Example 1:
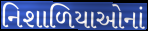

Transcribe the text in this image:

નિશાળિયાઓનાં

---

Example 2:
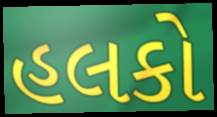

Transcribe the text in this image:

હલકો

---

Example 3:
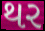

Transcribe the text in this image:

થર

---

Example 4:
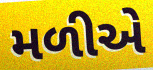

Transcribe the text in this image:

મળીએ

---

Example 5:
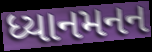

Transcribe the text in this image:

ધ્યાનમનન